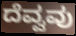
ದೆವ್ವವು